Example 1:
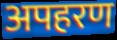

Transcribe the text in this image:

अपहरण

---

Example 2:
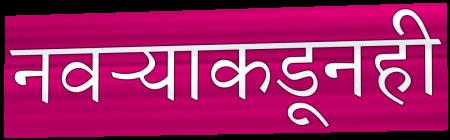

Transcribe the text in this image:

नवऱ्याकडूनही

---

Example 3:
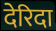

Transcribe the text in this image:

देरिदा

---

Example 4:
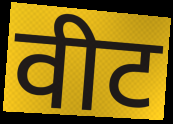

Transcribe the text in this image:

वीट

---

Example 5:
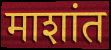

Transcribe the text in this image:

माशांत